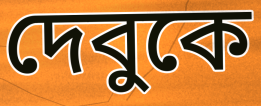
দেবুকে